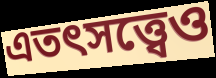
এতৎসত্ত্বেও